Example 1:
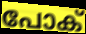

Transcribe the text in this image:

പോക്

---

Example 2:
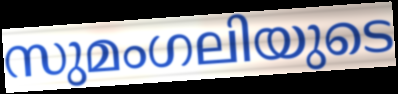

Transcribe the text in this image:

സുമംഗലിയുടെ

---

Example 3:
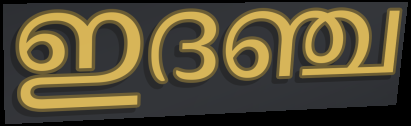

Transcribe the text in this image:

ഇദഞ്ച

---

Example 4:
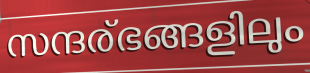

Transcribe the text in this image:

സന്ദര്ഭങ്ങളിലും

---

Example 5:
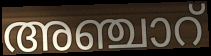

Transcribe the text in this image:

അഞ്ചാറ്